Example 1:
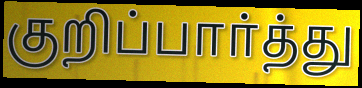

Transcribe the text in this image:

குறிப்பார்த்து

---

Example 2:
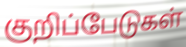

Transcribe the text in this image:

குறிப்பேடுகள்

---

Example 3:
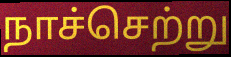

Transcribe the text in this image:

நாச்செற்று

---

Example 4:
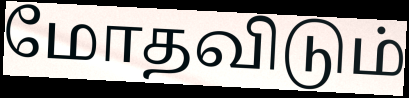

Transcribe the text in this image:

மோதவிடும்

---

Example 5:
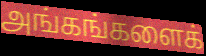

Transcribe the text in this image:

அங்கங்களைக்